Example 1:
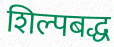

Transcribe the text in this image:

शिल्पबद्ध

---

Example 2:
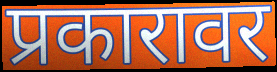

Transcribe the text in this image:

प्रकारावर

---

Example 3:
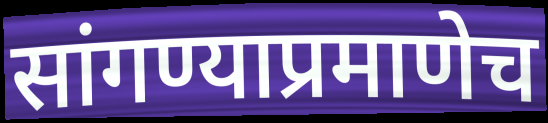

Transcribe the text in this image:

सांगण्याप्रमाणेच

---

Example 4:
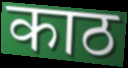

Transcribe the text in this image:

काठ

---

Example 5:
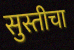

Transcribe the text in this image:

सुस्तीचा